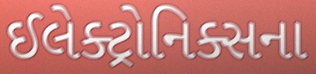
ઈલેક્ટ્રોનિક્સના